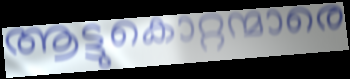
ആട്ടുകൊറ്റന്മാരെ